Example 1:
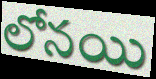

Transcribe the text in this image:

లోనయి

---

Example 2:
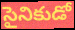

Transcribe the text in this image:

సైనికుడో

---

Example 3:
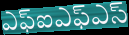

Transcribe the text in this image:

ఎఫ్ఐఎఫ్ఎస్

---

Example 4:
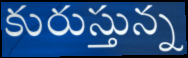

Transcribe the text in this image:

కురుస్తున్న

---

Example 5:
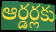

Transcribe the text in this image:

ఆర్డర్లకు